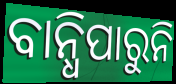
ବାନ୍ଧିପାରୁନି